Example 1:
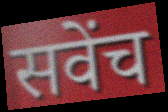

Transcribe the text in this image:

सवेंच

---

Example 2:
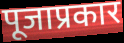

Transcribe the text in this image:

पूजाप्रकार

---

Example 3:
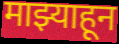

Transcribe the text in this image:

माझ्याहून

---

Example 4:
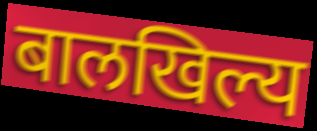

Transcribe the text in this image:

बालखिल्य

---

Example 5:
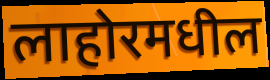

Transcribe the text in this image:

लाहोरमधील